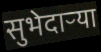
सुभेदाऱ्या